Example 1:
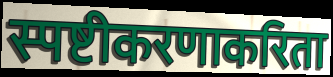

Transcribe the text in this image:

स्पष्टीकरणाकरिता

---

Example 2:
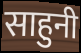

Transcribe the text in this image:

साहुनी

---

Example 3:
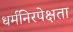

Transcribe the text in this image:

धर्मनिरपेक्षता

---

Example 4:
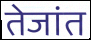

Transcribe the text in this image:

तेजांत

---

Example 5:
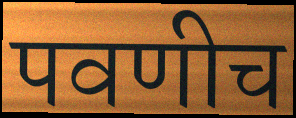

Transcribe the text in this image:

पवणीच